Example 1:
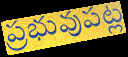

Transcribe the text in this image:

ప్రభువుపట్ల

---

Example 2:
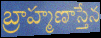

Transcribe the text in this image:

బ్రాహ్మణాస్తేన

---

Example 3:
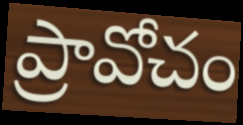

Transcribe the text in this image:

ప్రావోచం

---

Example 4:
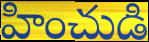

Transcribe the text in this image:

హించుడి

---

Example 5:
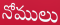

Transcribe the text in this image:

నోములు